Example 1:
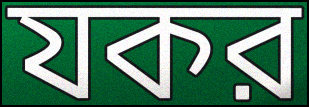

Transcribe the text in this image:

যকর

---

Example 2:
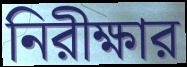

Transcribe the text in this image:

নিরীক্ষার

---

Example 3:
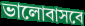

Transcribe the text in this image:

ভালোবাসবে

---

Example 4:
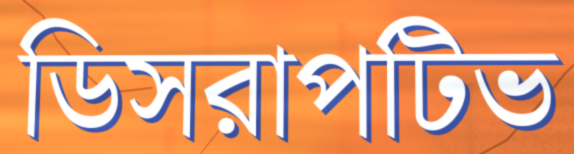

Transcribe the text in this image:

ডিসরাপটিভ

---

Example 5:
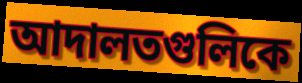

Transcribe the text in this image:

আদালতগুলিকে